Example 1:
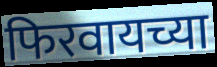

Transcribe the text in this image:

फिरवायच्या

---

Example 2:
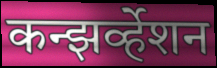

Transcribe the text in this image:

कन्झर्व्हेशन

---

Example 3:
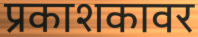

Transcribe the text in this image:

प्रकाशकावर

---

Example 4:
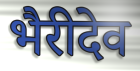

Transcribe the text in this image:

भैरीदेव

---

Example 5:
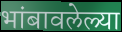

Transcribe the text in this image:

भांबावलेल्या